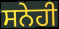
ਸਨੇਹੀ